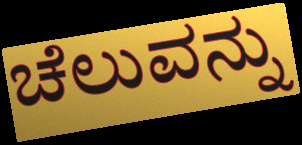
ಚೆಲುವನ್ನು